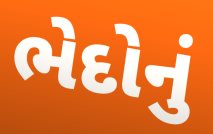
ભેદોનું